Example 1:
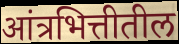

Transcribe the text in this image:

आंत्रभित्तीतील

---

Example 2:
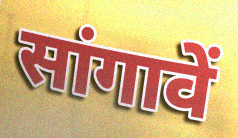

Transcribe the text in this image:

सांगावें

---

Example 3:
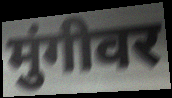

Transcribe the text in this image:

मुंगीवर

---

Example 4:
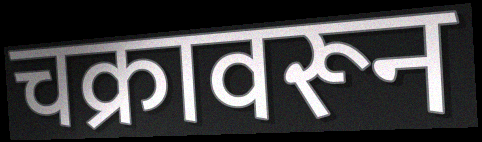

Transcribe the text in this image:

चक्रावरून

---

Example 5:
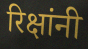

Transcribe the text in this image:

रिक्षांनी